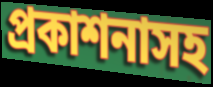
প্রকাশনাসহ